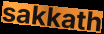
sakkath